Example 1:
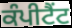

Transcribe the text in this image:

ਕੰਪੀਟੈਂਟ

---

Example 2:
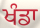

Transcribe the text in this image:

ਖੰਡਾ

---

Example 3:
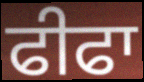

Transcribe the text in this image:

ਫੀਫਾ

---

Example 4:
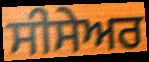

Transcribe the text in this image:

ਸੀਸੇਅਰ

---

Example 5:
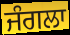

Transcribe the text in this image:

ਜੰਗਲਾ